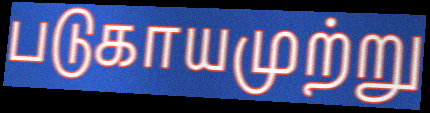
படுகாயமுற்று